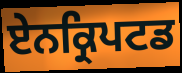
ਏਨਕ੍ਰਿਪਟਡ